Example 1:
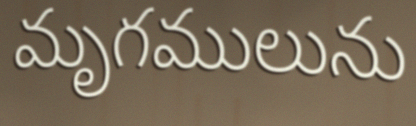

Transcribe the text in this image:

మృగములును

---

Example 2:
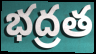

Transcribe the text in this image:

భద్రత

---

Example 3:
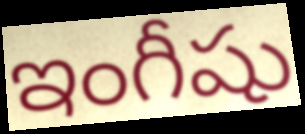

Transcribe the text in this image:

ఇంగీషు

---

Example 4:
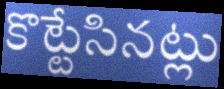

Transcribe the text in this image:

కొట్టేసినట్లు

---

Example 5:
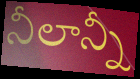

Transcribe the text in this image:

నీలాన్నీ